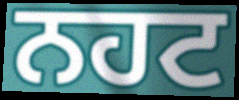
ਨਹਟ